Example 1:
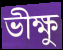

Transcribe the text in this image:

ভীক্ষু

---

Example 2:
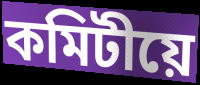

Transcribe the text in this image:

কমিটীয়ে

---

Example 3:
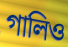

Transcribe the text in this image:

গালিও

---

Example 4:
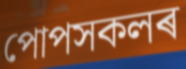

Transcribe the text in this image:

পোপসকলৰ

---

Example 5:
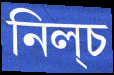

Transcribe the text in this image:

নিল্চ